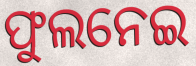
ଫୁଲନେଇ